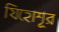
যিহোশূর